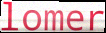
lomer